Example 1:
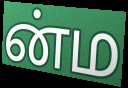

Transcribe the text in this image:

ன்ம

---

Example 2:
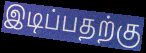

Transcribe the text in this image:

இடிப்பதற்கு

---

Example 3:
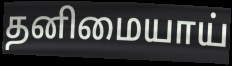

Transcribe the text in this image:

தனிமையாய்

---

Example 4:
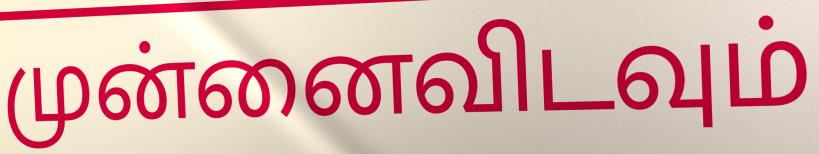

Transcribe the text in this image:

முன்னைவிடவும்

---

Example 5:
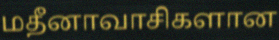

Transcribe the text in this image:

மதீனாவாசிகளான